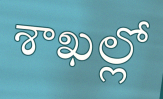
శాఖల్లో